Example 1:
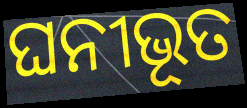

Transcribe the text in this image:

ଘନୀଭୂତ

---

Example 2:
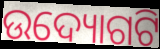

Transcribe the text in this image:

ଉଦ୍ୟୋଗଟି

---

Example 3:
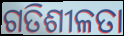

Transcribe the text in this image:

ଗତିଶୀଳତା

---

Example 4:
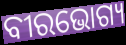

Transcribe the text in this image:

ବୀରଭୋଗ୍ୟ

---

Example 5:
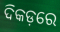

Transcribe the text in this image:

ଦିକଡ଼ରେ